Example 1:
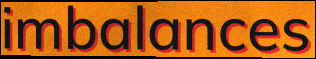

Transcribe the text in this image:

imbalances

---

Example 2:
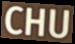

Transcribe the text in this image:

CHU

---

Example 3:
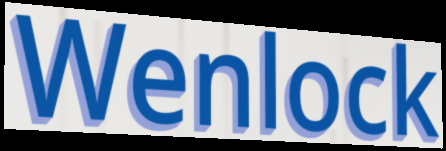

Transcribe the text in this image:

Wenlock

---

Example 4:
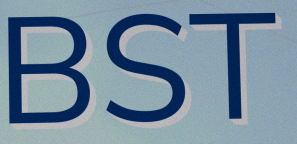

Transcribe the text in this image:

BST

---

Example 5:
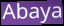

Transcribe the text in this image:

Abaya